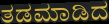
ತಡಮಾಡಿದ